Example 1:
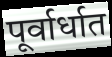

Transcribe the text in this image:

पूर्वार्धात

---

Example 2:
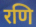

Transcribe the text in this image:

रणि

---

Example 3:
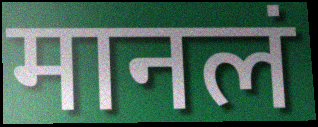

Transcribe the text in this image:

मानलं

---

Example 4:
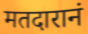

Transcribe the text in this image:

मतदारानं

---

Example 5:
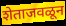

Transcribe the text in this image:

शेताजवळून